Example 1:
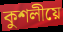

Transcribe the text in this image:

কুশলীয়ে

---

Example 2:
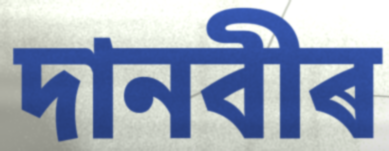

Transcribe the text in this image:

দানবীৰ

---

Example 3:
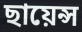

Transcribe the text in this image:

ছায়েন্স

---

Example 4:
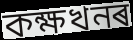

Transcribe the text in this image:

কক্ষখনৰ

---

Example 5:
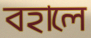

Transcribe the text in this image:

বহালে